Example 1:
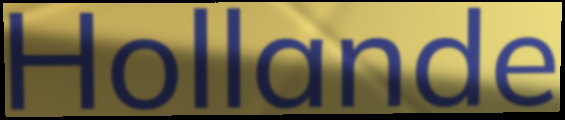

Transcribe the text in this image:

Hollande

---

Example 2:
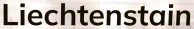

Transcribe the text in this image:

Liechtenstain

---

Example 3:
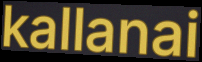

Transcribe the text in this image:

kallanai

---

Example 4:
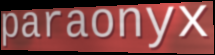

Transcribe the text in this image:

paraonyx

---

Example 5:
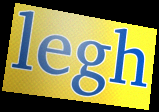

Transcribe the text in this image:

legh